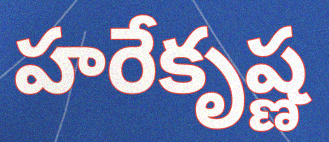
హరేకృష్ణ